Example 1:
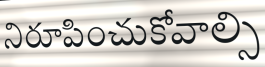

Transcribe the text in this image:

నిరూపించుకోవాల్సి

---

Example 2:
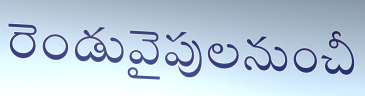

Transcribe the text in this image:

రెండువైపులనుంచీ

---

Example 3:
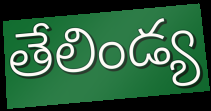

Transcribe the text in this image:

తేలిండ్య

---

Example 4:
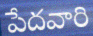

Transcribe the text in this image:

పేదవారి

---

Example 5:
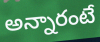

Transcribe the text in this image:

అన్నారంటే